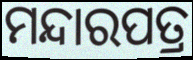
ମନ୍ଦାରପତ୍ର